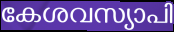
കേശവസ്യാപി